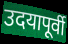
उदयापूर्वी